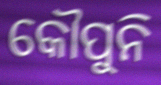
କୌପୁନି